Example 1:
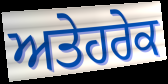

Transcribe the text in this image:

ਅਤੇਹਰੇਕ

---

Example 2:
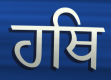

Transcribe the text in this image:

ਹਥਿ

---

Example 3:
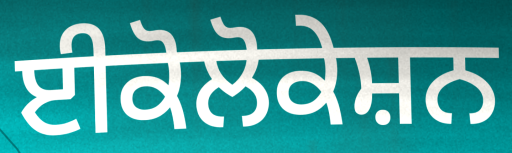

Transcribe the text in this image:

ਈਕੋਲੋਕੇਸ਼ਨ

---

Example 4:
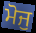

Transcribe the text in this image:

ਮੋਜੁ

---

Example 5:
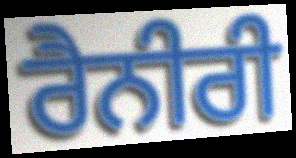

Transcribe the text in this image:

ਰੈਨੀਰੀ